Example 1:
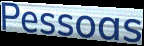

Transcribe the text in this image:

Pessoas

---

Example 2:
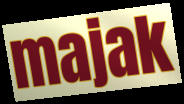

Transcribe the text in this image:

majak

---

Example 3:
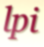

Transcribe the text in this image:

lpi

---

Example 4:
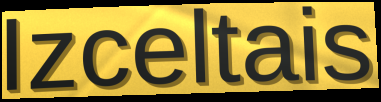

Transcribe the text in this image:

Izceltais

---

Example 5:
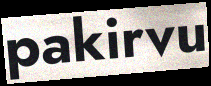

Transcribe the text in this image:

pakirvu